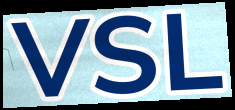
VSL